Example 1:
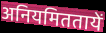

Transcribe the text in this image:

अनियमिततायें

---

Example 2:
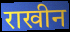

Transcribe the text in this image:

राखीन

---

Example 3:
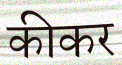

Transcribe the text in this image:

कीकर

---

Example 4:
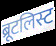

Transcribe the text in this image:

ब्रूटलिस्ट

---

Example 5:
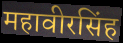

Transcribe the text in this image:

महावीरसिंह